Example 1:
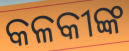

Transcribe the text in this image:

କଳକୀଙ୍କ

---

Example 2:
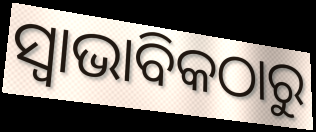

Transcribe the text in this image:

ସ୍ୱାଭାବିକଠାରୁ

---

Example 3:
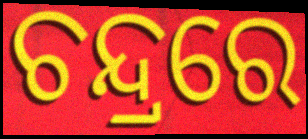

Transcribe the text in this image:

ଚନ୍ଦ୍ରରେ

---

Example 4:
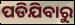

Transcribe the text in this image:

ପଡିଯିବାରୁ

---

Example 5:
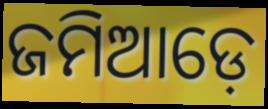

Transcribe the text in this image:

ଜମିଆଡ଼େ